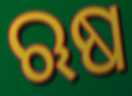
ଋଷ